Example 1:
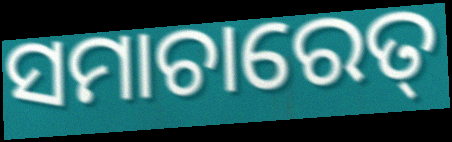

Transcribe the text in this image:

ସମାଚାରେତ୍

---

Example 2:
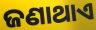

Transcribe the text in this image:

ଜଣାଥାଏ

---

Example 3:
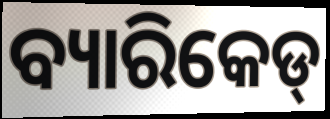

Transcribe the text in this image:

ବ୍ୟାରିକେଡ୍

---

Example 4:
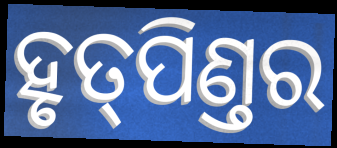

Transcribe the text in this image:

ହୃତ୍‌ପିଣ୍ତର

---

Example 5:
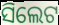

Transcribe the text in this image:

ସିଲେଟ